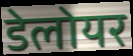
डेलोयर